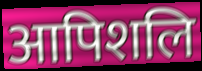
आपिशलि